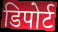
डिपोर्ट